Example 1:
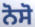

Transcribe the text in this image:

ਨੋਸੋ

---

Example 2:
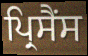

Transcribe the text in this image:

ਪ੍ਰਿਸੈਂਸ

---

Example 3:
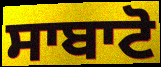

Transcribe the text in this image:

ਸਾਬਾਟੋ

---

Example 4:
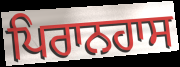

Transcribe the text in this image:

ਪਿਰਾਨਹਾਸ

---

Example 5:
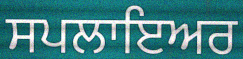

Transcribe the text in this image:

ਸਪਲਾਇਅਰ